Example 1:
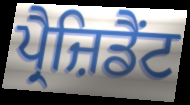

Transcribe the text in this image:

ਪ੍ਰੈਜ਼ਿਡੈਂਟ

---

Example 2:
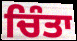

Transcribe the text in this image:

ਚਿੰਤਾ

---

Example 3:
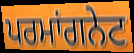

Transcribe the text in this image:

ਪਰਮਾਂਗਨੇਟ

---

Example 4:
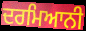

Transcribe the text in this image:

ਦਰਮਿਆਨੀ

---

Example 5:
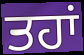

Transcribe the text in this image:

ਤਹਾਂ